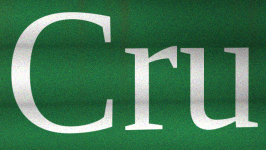
Cru